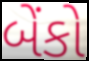
બેંકો